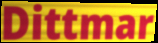
Dittmar